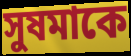
সুষমাকে